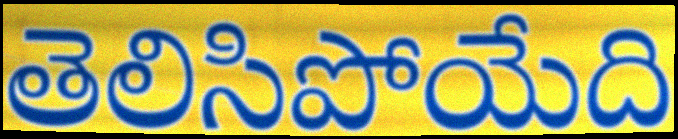
తెలిసిపోయేది